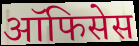
ऑफिसेस